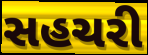
સહચરી